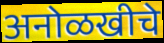
अनोळखीचे